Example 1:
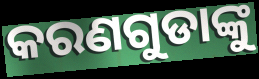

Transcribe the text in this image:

କରଣଗୁଡାଙ୍କୁ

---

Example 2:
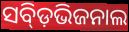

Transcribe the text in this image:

ସବ୍ଡ଼ିଭିଜନାଲ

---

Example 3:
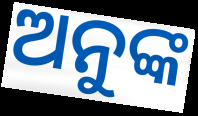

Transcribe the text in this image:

ଅନୁଙ୍କ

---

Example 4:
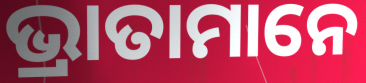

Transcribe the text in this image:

ଭ୍ରାତାମାନେ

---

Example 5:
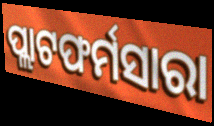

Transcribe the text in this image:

ପ୍ଲାଟଫର୍ମସାରା